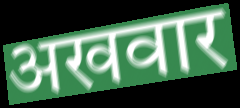
अखवार